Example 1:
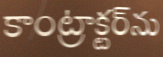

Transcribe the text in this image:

కాంట్రాక్టర్‌ను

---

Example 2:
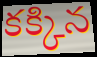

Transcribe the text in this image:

కక్కిన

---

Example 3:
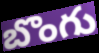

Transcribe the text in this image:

బొంగు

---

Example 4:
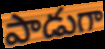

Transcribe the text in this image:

పాడుగా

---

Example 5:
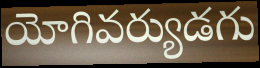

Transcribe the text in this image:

యోగివర్యుడగు